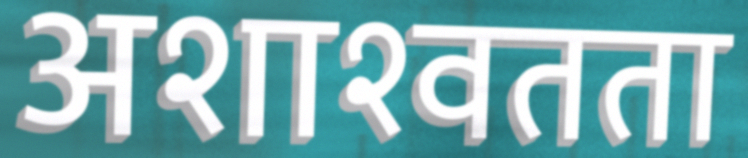
अशाश्वतता